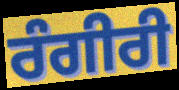
ਰੰਗੀਰੀ